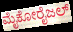
ಮೈಕೋರೈಜಲ್